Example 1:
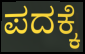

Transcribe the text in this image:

ಪದಕ್ಕೆ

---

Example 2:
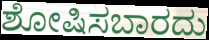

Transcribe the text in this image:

ಶೋಷಿಸಬಾರದು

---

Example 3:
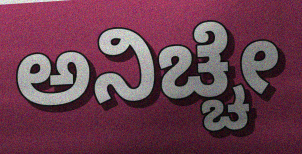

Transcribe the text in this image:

ಅನಿಚ್ಚೇ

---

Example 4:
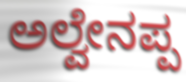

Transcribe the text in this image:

ಅಲ್ವೇನಪ್ಪ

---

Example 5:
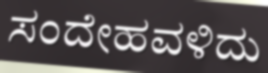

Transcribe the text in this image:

ಸಂದೇಹವಳಿದು